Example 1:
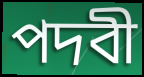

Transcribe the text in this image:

পদবী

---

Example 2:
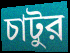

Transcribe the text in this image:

চাটুর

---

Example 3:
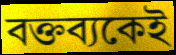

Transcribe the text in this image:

বক্তব্যকেই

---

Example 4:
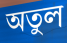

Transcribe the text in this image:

অতুল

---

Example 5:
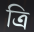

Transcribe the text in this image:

ত্রি